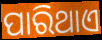
ପାରିଥାଏ